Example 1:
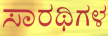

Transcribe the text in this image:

ಸಾರಥಿಗಳ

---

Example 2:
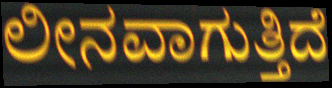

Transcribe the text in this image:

ಲೀನವಾಗುತ್ತಿದೆ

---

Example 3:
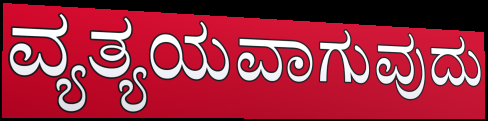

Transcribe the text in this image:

ವ್ಯತ್ಯಯವಾಗುವುದು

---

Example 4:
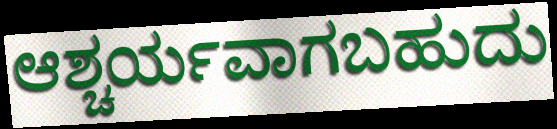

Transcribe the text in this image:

ಆಶ್ಚರ್ಯವಾಗಬಹುದು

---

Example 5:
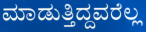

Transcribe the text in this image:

ಮಾಡುತ್ತಿದ್ದವರೆಲ್ಲ